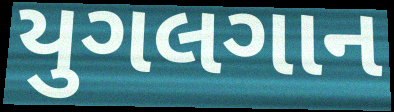
યુગલગાન